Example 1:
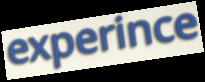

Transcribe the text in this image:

experince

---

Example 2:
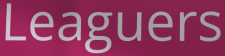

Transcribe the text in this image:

Leaguers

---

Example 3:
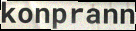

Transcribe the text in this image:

konprann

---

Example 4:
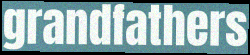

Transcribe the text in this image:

grandfathers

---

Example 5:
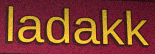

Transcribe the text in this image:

ladakk